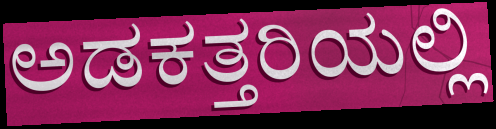
ಅಡಕತ್ತರಿಯಲ್ಲಿ